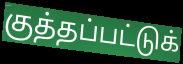
குத்தப்பட்டுக்